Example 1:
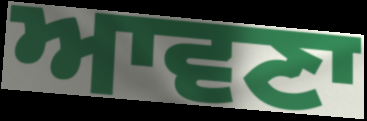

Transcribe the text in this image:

ਆਵਣਾ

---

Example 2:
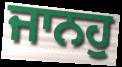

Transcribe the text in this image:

ਜਾਨਹੁ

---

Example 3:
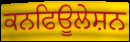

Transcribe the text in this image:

ਕਨਫਿਊਲੇਸ਼ਨ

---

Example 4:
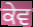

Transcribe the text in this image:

ਕੇਵ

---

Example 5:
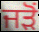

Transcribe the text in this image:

ਜਡ਼ੋਂ